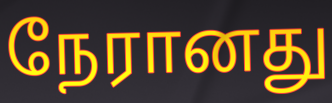
நேரானது